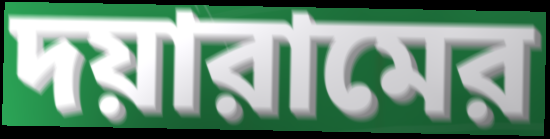
দয়ারামের